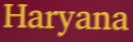
Haryana